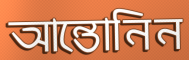
আন্তোনিন